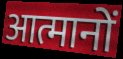
आत्मानों